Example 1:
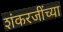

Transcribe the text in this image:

शंकरजींच्या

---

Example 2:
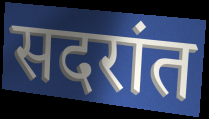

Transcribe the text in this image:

सदरांत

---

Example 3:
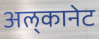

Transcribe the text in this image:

अल्कानेट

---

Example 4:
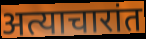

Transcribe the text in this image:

अत्याचारांत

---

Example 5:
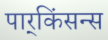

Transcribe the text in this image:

पार्किंसन्स